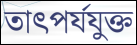
তাৎপর্যযুক্ত